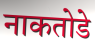
नाकतोडे